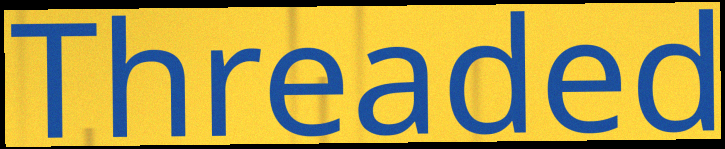
Threaded